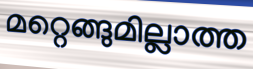
മറ്റെങ്ങുമില്ലാത്ത